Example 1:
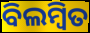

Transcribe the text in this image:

ବିଲମ୍ବିତ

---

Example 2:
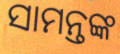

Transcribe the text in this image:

ସାମନ୍ତଙ୍କ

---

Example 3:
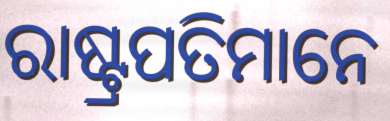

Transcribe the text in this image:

ରାଷ୍ଟ୍ରପତିମାନେ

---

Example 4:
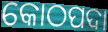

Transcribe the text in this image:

କୋଠପଦା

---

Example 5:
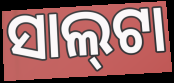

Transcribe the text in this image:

ସାଲ୍‌ଟା